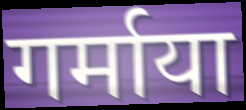
गर्माया